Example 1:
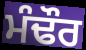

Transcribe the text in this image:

ਮੰਢੌਰ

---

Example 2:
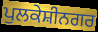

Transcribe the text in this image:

ਪੁਲਕੇਸ਼ੀਨਗਰ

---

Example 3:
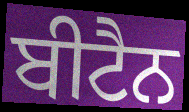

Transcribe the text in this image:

ਬੀਟੈਨ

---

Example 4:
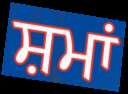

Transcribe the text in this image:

ਸ਼ਮਾਂ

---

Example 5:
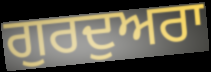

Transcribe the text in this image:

ਗੁਰਦੁਅਰਾ